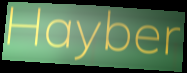
Hayber